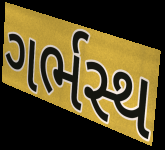
ગર્ભસ્થ